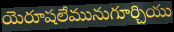
యెరూషలేమునుగూర్చియు